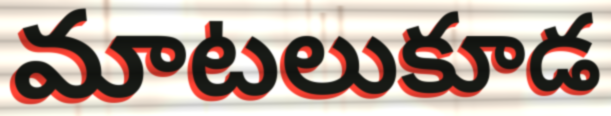
మాటలుకూడ